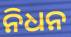
ନିଧନ